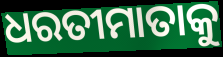
ଧରତୀମାତାକୁ